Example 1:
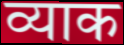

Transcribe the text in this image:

व्याक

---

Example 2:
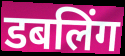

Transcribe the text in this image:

डबलिंग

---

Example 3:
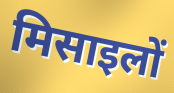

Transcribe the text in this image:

मिसाइलों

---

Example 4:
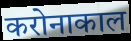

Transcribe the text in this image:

करोनाकाल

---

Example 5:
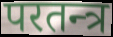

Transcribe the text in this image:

परतन्त्र